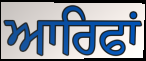
ਆਰਿਫਾਂ